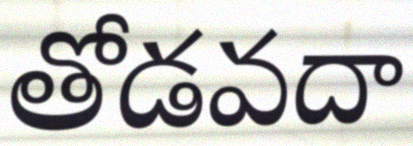
తోడవదా